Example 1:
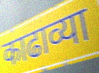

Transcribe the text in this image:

काढाव्या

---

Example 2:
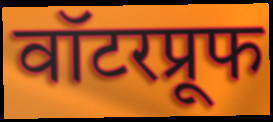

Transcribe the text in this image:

वॉटरप्रूफ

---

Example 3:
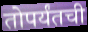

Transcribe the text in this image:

तोपर्यंतची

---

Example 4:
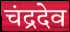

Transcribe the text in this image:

चंद्रदेव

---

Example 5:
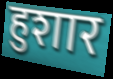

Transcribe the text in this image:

हुशार